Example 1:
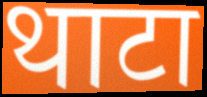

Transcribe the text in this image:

थाटा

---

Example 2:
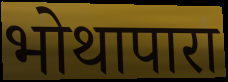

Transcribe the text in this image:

भोथापारा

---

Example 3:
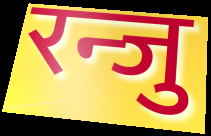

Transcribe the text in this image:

रन्जु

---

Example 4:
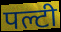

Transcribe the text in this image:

पल्टी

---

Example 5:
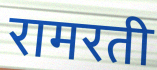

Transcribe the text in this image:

रामरती